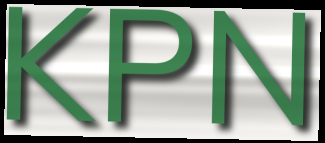
KPN